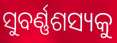
ସୁବର୍ଣ୍ଣଶସ୍ୟକୁ